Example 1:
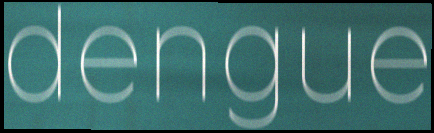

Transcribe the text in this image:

dengue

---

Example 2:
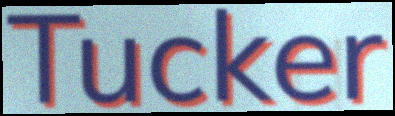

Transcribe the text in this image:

Tucker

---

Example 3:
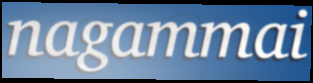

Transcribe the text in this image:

nagammai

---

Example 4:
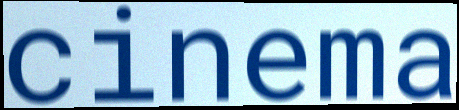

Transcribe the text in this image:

cinema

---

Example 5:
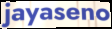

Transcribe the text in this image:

jayaseno